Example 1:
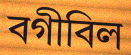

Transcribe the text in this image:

বগীবিল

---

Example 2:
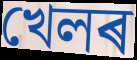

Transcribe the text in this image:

খেলৰ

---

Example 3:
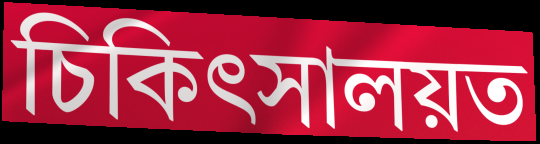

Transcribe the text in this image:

চিকিৎসালয়ত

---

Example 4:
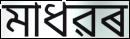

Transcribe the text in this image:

মাধৱৰ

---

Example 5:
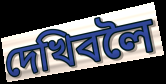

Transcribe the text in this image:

দেখিবলৈ